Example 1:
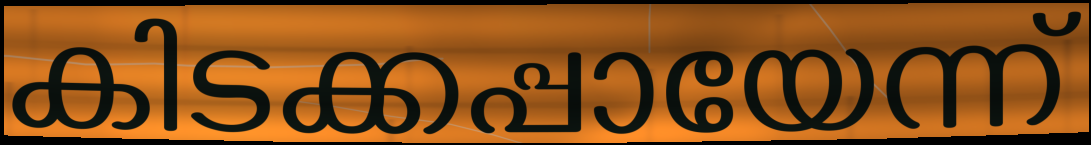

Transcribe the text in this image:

കിടക്കപ്പായേന്ന്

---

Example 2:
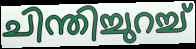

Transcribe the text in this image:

ചിന്തിച്ചുറച്ച്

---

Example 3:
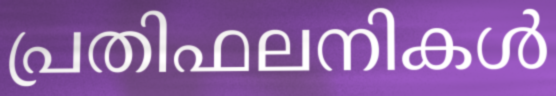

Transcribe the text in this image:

പ്രതിഫലനികൾ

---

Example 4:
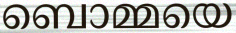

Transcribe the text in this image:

ബൊമ്മയെ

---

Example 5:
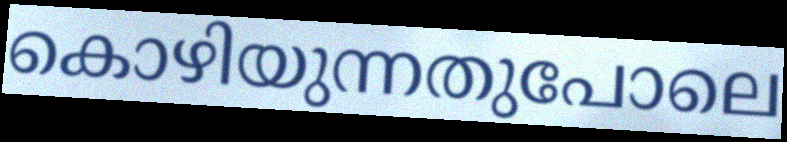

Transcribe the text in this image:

കൊഴിയുന്നതുപോലെ